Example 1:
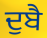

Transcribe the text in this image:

ਦੁਬੈ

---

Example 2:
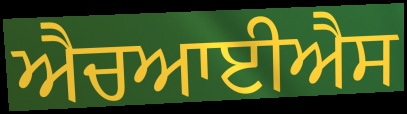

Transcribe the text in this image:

ਐਚਆਈਐਸ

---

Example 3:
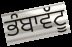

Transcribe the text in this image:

ਭੰਬਾਵੱਟੂ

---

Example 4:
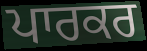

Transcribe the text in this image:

ਪਾਰਕਰ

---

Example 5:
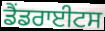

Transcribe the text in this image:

ਡੈਂਡਰਾਈਟਸ